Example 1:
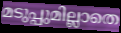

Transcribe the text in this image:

മടുപ്പുമില്ലാതെ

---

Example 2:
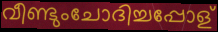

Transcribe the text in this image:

വീണ്ടുംചോദിച്ചപ്പോള്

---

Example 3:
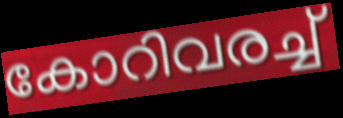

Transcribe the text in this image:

കോറിവരച്ച്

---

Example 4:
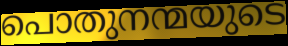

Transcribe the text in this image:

പൊതുനന്മയുടെ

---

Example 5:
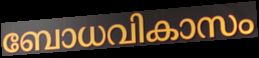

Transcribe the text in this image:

ബോധവികാസം